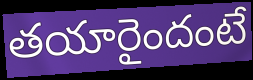
తయారైందంటే